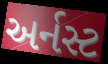
અર્નસ્ટ